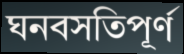
ঘনবসতিপূর্ণ